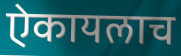
ऐकायलाच